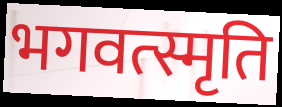
भगवत्स्मृति